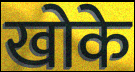
खोके